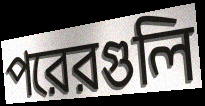
পরেরগুলি